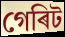
গেৰিট